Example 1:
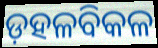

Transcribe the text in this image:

ଡ଼ହଳବିକଳ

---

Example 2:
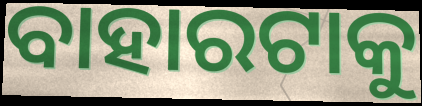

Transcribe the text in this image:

ବାହାରଟାକୁ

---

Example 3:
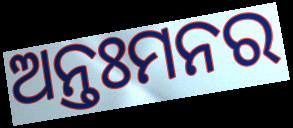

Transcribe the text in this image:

ଅନ୍ତଃମନର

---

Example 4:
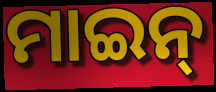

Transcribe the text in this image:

ମାଇନ୍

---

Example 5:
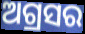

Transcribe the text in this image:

ଅଗ୍ରସର